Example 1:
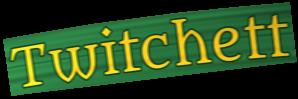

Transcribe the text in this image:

Twitchett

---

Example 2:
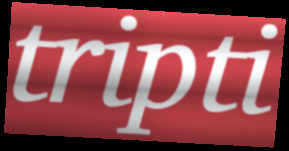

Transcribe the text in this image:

tripti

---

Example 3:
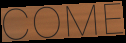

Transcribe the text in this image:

COME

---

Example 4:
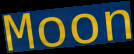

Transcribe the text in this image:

Moon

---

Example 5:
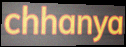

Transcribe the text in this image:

chhanya